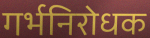
गर्भनिरोधक